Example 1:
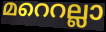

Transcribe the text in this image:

മറെറല്ലാ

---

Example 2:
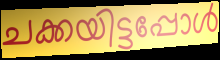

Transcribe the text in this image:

ചക്കയിട്ടപ്പോൾ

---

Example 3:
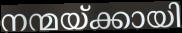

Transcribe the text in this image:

നന്മയ്ക്കായി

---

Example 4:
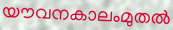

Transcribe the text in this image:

യൗവനകാലംമുതൽ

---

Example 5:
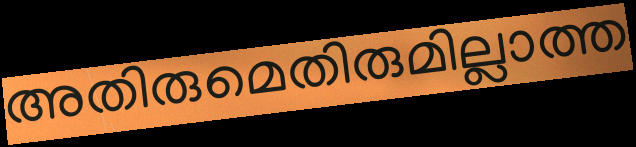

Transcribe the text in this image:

അതിരുമെതിരുമില്ലാത്ത